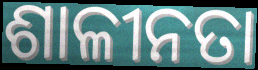
ଶାଳୀନତା